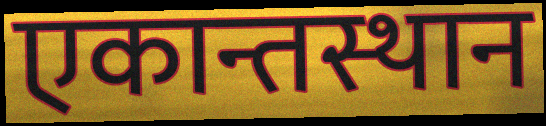
एकान्तस्थान